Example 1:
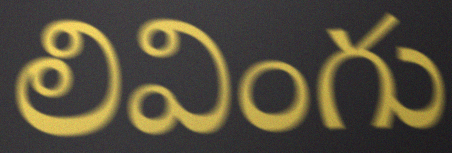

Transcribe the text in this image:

లివింగు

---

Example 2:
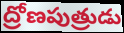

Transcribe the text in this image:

ద్రోణపుత్రుడు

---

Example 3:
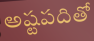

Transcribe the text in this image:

అష్టపదితో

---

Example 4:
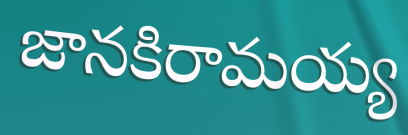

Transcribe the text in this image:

జానకిరామయ్య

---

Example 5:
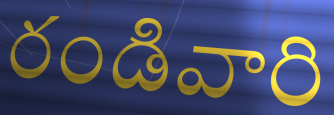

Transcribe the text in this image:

రండివారి